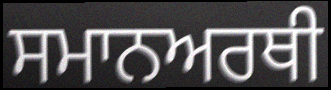
ਸਮਾਨਅਰਥੀ